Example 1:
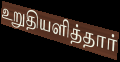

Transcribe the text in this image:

உறுதியளித்தார்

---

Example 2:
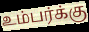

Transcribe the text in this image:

உம்பர்க்கு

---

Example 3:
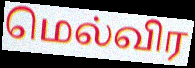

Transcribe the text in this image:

மெல்விர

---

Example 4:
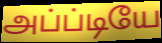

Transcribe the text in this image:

அப்ப்டியே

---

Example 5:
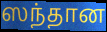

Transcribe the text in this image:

ஸந்தான